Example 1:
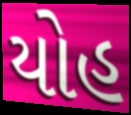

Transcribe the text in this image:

યોહ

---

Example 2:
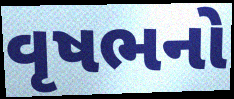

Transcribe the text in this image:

વૃષભનો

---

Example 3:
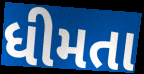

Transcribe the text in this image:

ધીમતા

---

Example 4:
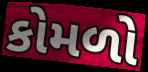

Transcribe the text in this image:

કોમળો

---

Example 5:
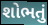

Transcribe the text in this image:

શોભતું